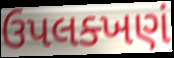
ઉપલક્ખણં